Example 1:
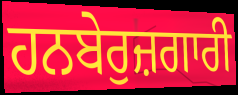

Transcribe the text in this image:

ਹਨਬੇਰੁਜ਼ਗਾਰੀ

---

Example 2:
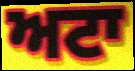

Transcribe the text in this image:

ਅਟਾ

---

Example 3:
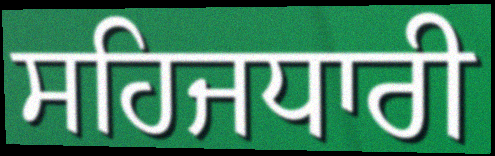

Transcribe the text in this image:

ਸਹਿਜਧਾਰੀ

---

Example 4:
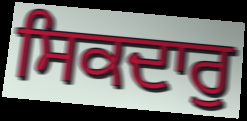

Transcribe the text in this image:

ਸਿਕਦਾਰੁ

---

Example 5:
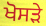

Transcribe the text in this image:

ਖੋਸੜੇ